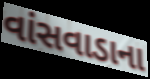
વાંસવાડાના